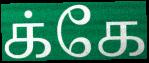
க்கே